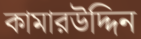
কামারউদ্দিন